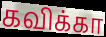
கவிக்கா